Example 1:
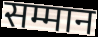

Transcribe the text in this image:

सम्‍मान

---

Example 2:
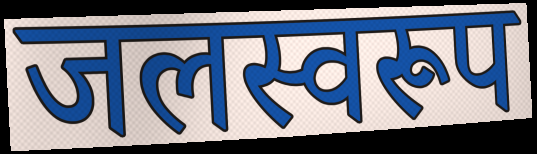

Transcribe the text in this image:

जलस्वरूप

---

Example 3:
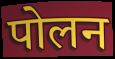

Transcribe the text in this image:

पोलन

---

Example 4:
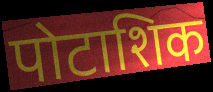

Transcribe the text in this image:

पोटाशिक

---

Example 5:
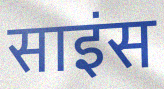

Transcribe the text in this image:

साइंस